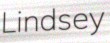
Lindsey